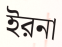
ইরনা